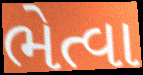
ભેત્વા